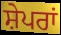
ਸ਼ੇਪਰਾਂ